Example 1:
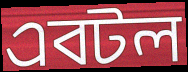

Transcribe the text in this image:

এবটল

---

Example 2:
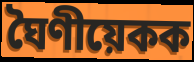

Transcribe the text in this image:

ঘৈণীয়েকক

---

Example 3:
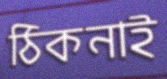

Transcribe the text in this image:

ঠিকনাই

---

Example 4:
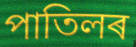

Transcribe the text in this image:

পাতিলৰ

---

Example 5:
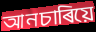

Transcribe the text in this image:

আনচাৰিয়ে